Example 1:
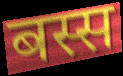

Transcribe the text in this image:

बस्स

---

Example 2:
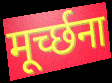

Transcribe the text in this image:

मूर्च्छना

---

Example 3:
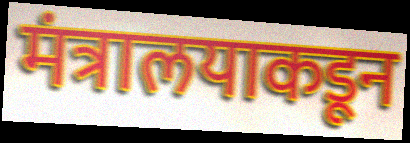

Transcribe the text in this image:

मंत्रालयाकडून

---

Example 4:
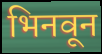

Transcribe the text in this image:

भिनवून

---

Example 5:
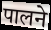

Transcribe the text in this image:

पालने